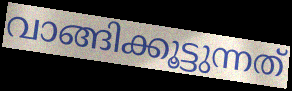
വാങ്ങിക്കൂട്ടുന്നത്